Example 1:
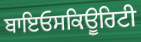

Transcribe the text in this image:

ਬਾਇਓਸਕਿਊਰਿਟੀ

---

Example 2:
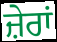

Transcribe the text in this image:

ਜ਼ੇਰਾਂ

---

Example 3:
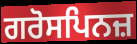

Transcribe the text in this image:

ਗਰੋਸਪਿਨਜ਼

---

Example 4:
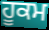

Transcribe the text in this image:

ਹੂਕਮ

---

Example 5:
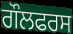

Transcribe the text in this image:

ਗੌਲਫਰਸ